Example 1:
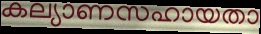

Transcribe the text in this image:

കല്യാണസഹായതാ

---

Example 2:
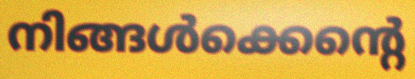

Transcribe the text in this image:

നിങ്ങൾക്കെന്റെ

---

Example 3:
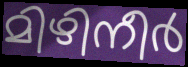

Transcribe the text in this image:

മിഴിനീർ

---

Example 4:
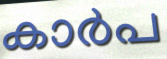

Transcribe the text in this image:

കാർപ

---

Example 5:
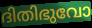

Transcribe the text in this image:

ദിതിഭുവോ